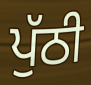
ਪੁੱਠੀ